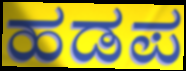
ಹಡಪ